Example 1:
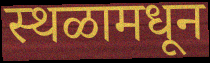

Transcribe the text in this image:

स्थळामधून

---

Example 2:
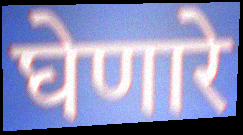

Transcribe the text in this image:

घेणारे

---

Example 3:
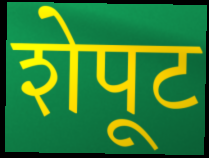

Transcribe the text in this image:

शेपूट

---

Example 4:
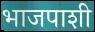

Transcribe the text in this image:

भाजपाशी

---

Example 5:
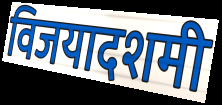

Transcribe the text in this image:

विजयादशमी